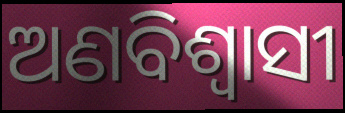
ଅଣବିଶ୍ୱାସୀ